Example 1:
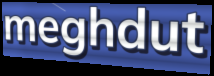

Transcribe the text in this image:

meghdut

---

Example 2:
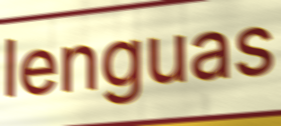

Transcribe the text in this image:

lenguas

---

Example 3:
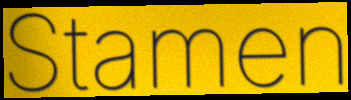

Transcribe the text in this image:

Stamen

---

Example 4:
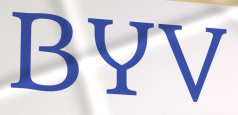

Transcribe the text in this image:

BYV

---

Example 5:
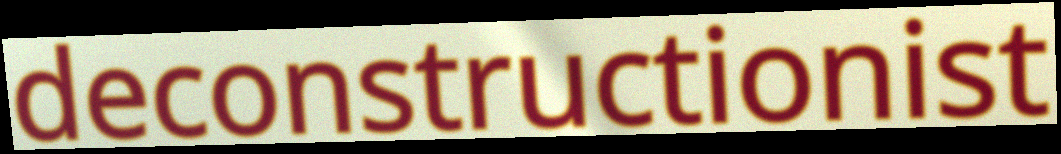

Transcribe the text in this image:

deconstructionist